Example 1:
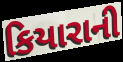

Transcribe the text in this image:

કિયારાની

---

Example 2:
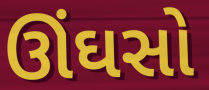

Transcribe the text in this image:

ઊંઘસો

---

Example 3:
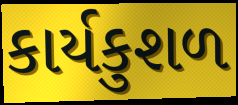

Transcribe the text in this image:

કાર્યકુશળ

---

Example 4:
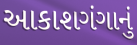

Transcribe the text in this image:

આકાશગંગાનું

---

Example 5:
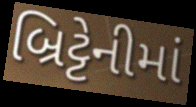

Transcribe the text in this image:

બ્રિટ્ટેનીમાં